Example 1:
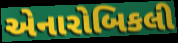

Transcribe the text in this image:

એનારોબિકલી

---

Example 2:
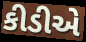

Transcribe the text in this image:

કીડીએ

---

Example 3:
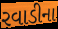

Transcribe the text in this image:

રવાડીના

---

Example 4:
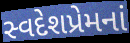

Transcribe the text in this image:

સ્વદેશપ્રેમનાં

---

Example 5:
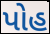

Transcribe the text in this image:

પોહ